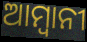
ଆମ୍ବାନୀ